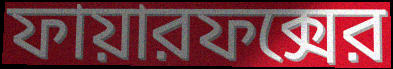
ফায়ারফক্সের